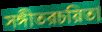
সঙ্গীতরচয়িতা